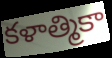
కళాత్మికా